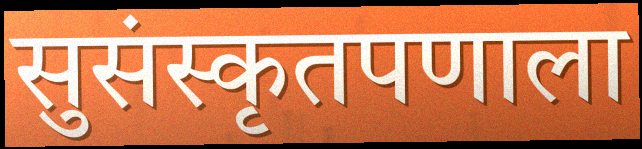
सुसंस्कृतपणाला